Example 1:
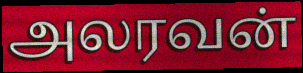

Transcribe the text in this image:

அலரவன்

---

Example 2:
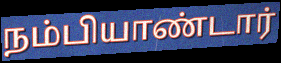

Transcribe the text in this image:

நம்பியாண்டார்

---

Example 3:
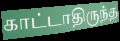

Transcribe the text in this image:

காட்டாதிருந்த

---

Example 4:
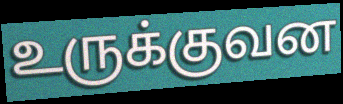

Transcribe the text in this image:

உருக்குவன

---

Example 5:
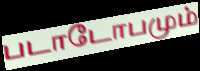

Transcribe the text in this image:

படாடோபமும்